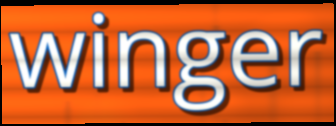
winger